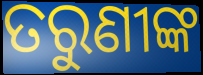
ତରୁଣୀଙ୍କ